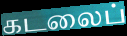
கடலைப்